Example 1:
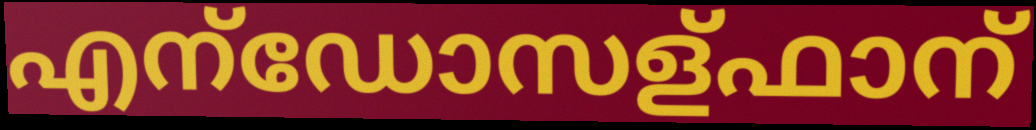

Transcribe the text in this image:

എന്ഡോസള്ഫാന്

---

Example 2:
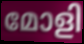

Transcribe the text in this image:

മോളി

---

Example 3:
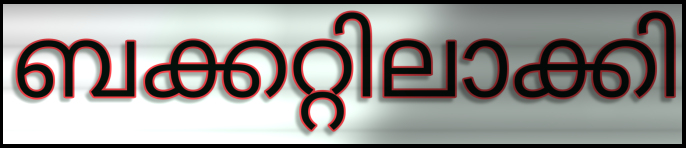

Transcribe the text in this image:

ബക്കറ്റിലാക്കി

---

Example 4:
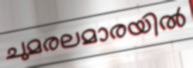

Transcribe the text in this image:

ചുമരലമാരയിൽ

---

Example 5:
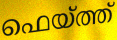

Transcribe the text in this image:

ഫെയ്ത്ത്